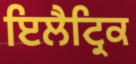
ਇਲੈਟ੍ਰਿਕ